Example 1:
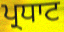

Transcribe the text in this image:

ਪ੍ਰਧਾਟ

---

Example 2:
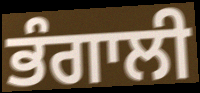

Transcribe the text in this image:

ਭੰਗਾਲੀ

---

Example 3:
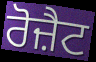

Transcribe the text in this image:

ਰੋਜ਼ੈਟ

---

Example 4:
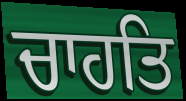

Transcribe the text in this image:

ਚਾਹਤਿ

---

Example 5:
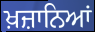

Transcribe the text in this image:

ਖ਼ਜ਼ਾਨਿਆਂ